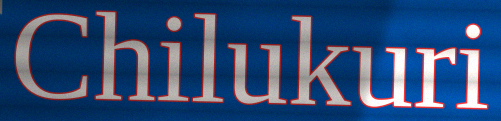
Chilukuri